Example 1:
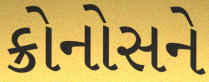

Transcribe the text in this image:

ક્રોનોસને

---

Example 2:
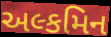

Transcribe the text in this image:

અલ્કમિન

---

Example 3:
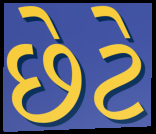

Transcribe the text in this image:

છેટે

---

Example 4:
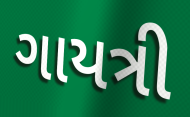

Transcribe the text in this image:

ગાયત્રી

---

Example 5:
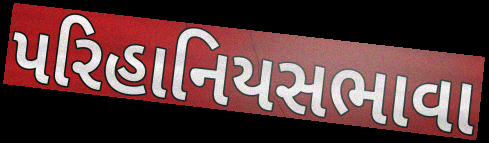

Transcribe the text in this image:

પરિહાનિયસભાવા